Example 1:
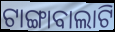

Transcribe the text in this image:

ଟାଙ୍ଗାବାଲାଟି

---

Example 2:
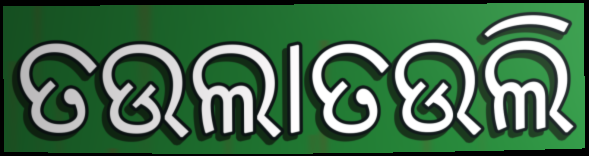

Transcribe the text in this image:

ତଉଲାତଉଲି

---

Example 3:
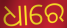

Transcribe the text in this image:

ଧାରେ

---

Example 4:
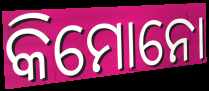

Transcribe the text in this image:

କିମୋନୋ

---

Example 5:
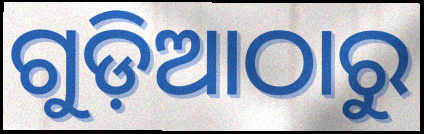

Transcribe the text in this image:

ଗୁଡ଼ିଆଠାରୁ